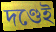
দণ্ডেই